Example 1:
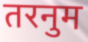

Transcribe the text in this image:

तरनुम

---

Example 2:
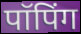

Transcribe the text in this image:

पॉपिंग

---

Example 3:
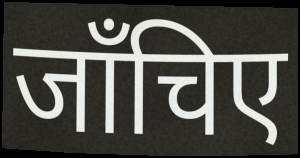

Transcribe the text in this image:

जाँचिए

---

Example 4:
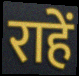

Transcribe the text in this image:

राहें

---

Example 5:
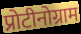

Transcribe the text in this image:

प्रोटीनोग्राम